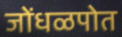
जोंधळपोत